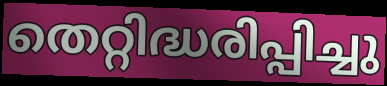
തെറ്റിദ്ധരിപ്പിച്ചു